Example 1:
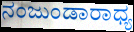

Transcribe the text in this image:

ನಂಜುಂಡಾರಾಧ್ಯ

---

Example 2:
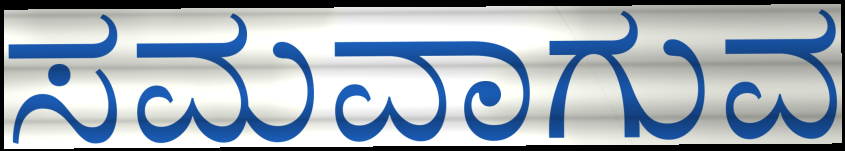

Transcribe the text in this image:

ಸಮವಾಗುವ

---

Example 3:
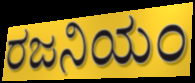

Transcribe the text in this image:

ರಜನಿಯಂ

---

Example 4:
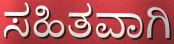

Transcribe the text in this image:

ಸಹಿತವಾಗಿ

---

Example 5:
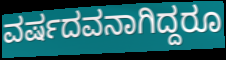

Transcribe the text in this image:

ವರ್ಷದವನಾಗಿದ್ದರೂ